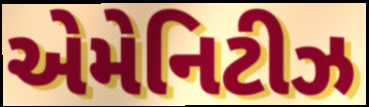
એમેનિટીઝ